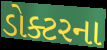
ડોક્ટરના